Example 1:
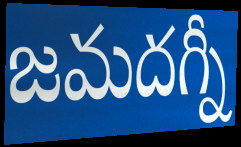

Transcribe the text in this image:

జమదగ్నీ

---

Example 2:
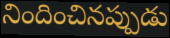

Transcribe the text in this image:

నిందించినప్పుడు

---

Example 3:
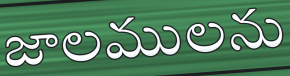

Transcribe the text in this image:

జాలములను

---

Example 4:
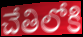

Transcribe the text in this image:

చేతిలోకి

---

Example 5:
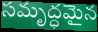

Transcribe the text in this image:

సమృద్ధమైన